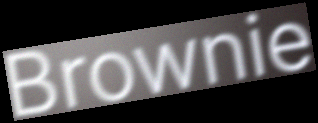
Brownie